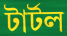
টার্টল